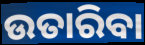
ଉତାରିବା